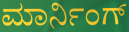
ಮಾರ್ನಿಂಗ್